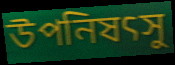
উপনিষৎসু